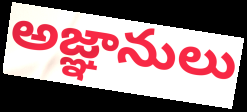
అజ్ఞానులు